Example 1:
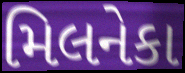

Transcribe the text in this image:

મિલનેકા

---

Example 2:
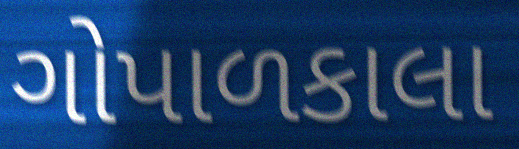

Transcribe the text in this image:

ગોપાળકાલા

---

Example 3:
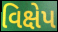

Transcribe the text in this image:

વિક્ષેપ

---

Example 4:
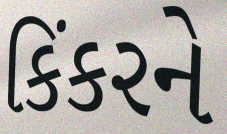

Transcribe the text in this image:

કિંકરને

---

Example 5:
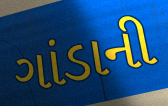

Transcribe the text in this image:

ગાંડાની